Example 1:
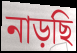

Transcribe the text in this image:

নাড়ছি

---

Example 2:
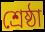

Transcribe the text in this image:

শ্রেষ্ঠা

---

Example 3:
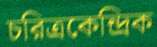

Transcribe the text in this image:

চরিত্রকেন্দ্রিক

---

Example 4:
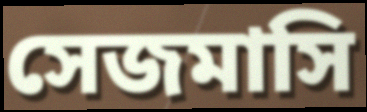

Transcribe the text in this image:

সেজমাসি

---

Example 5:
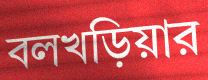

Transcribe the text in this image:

বলখড়িয়ার